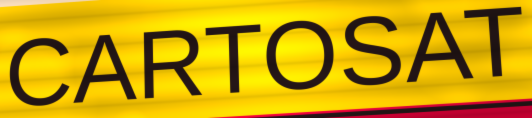
CARTOSAT